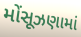
મોંસૂઝણામાં